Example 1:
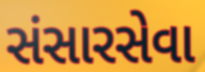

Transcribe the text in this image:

સંસારસેવા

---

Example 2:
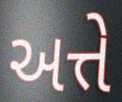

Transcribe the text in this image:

અત્તે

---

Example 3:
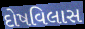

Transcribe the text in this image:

દોષવિલાસ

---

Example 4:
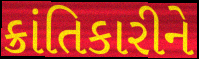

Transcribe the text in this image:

ક્રાંતિકારીને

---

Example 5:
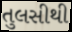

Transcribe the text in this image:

તુલસીથી